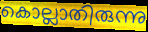
കൊല്ലാതിരുന്നു